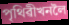
পৃথিৱীখনলৈ